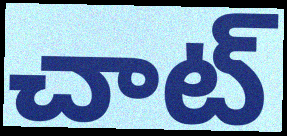
చాట్